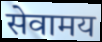
सेवामय